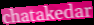
chatakedar